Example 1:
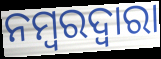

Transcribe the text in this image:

ନମ୍ବରଦ୍ୱାରା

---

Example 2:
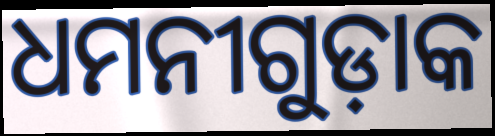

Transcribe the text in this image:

ଧମନୀଗୁଡ଼ାକ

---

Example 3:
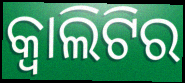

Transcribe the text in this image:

କ୍ୱାଲିଟିର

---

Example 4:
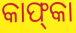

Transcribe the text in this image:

କାଫ୍‍କା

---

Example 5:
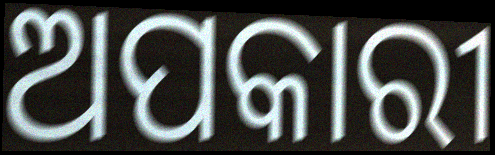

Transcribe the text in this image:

ଅପକାରୀ